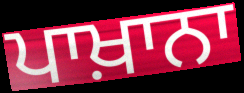
ਪਾਖ਼ਾਨਾ